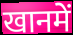
खानमें